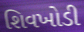
શિવખોડી